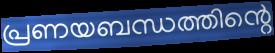
പ്രണയബന്ധത്തിന്റെ